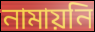
নামায়নি